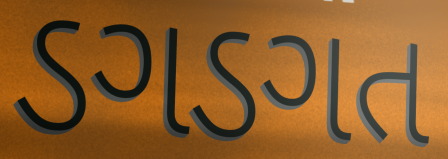
ડગડગત